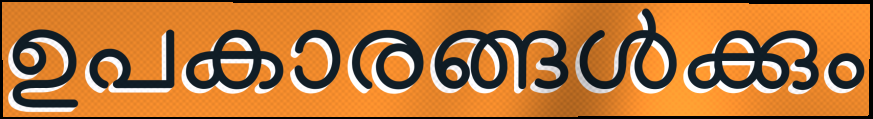
ഉപകാരങ്ങൾക്കും